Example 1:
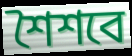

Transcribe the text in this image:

শৈশবে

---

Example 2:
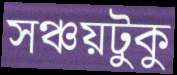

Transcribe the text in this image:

সঞ্চয়টুকু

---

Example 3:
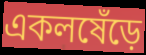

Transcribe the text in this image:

একলষেঁড়ে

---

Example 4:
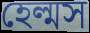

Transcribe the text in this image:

হেল্মস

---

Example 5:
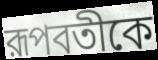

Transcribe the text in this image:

রূপবতীকে